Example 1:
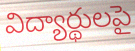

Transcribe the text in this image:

విద్యార్థులపై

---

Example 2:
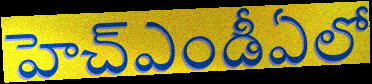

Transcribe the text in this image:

హెచ్ఎండీఏలో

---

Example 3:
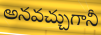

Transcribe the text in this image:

అనవచ్చుగానీ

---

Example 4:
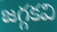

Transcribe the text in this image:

జగ్గకవి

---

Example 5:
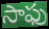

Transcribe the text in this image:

సాఫు